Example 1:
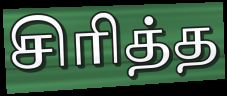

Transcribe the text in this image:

சிரித்த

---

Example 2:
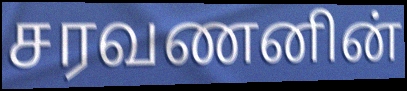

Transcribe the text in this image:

சரவணனின்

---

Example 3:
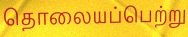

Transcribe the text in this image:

தொலையப்பெற்று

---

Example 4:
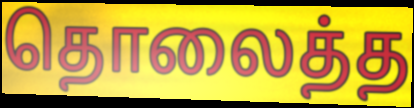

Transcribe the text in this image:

தொலைத்த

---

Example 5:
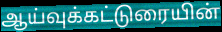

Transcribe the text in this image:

ஆய்வுக்கட்டுரையின்